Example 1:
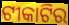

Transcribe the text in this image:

ଟୀକାଟିର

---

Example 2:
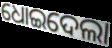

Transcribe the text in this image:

ଧୋଇଦେଲା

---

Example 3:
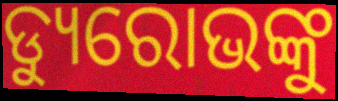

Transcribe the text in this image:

ଡ୍ୟୁରୋଭଙ୍କୁ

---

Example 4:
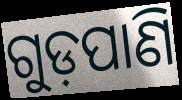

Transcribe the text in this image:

ଗୁଡ଼ପାଣି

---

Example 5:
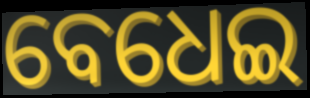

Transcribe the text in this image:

ବେଧେଇ